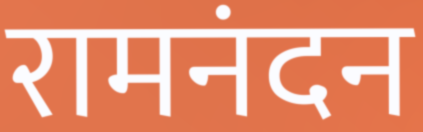
रामनंदन